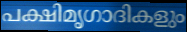
പക്ഷിമൃഗാദികളും